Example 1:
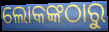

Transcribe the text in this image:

ଲୋକଙ୍କଠାରୁ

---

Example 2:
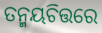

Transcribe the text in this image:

ତନ୍ମୟଚିତ୍ତରେ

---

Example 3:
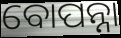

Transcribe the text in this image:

ବୋପନ୍ନା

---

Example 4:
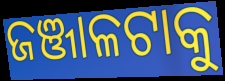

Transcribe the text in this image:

ଜଞ୍ଜାଳଟାକୁ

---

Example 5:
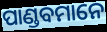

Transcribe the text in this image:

ପାଣ୍ଡବମାନେ